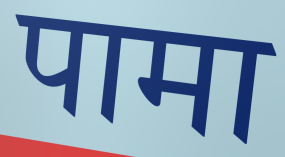
पामा